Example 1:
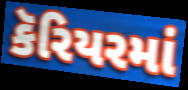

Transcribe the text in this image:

કૅરિયરમાં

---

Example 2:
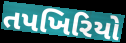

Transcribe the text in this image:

તપખિરિયો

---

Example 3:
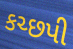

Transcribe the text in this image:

કચ્છપી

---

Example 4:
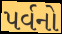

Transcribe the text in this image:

પર્વનો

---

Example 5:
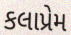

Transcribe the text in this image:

કલાપ્રેમ